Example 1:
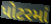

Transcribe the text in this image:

પોટરમાં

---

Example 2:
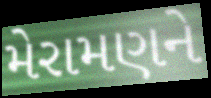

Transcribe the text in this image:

મેરામણને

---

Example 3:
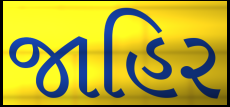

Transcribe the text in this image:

જાહિર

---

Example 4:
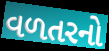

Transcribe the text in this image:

વળતરનો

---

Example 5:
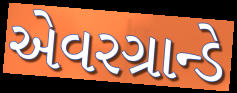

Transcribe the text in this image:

એવરગ્રાન્ડે